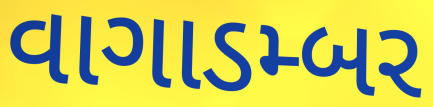
વાગાડમ્બર